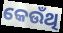
କେଉଁଥି